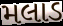
મલાડ